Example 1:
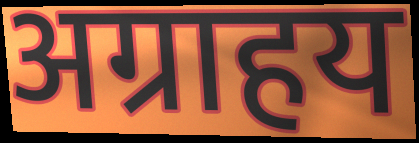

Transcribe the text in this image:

अग्राहय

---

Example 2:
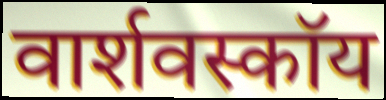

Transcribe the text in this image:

वार्शवस्कॉय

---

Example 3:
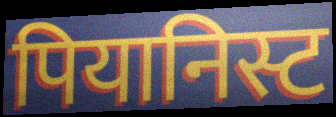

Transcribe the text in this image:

पियानिस्ट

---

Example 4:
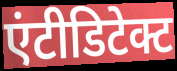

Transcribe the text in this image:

एंटीडिटेक्ट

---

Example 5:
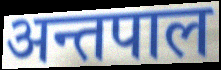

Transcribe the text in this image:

अन्तपाल